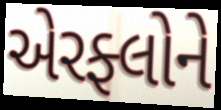
એરફ્લોને